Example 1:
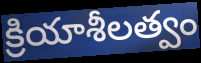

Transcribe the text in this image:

క్రియాశీలత్వం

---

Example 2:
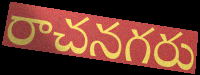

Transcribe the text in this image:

రాచనగరు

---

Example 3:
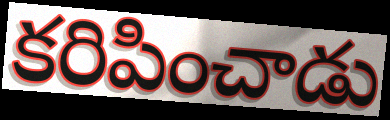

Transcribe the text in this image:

కరిపించాడు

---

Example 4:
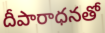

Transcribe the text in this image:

దీపారాధనతో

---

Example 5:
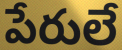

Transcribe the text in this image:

పేరులే